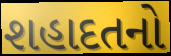
શહાદતનો